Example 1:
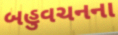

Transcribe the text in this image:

બહુવચનના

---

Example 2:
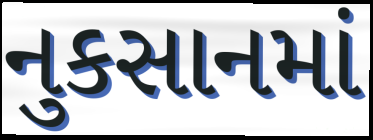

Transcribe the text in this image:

નુકસાનમાં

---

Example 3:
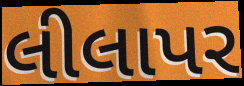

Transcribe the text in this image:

લીલાપર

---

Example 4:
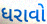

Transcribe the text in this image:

ધરાવો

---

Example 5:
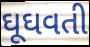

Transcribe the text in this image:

ઘૂઘવતી